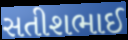
સતીશભાઈ